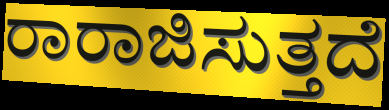
ರಾರಾಜಿಸುತ್ತದೆ